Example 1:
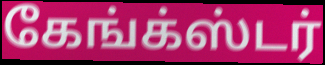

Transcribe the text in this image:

கேங்க்ஸ்டர்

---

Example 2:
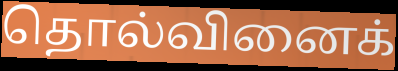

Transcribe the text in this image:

தொல்வினைக்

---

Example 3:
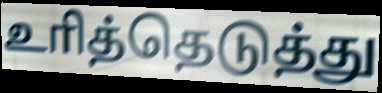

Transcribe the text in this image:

உரித்தெடுத்து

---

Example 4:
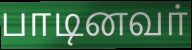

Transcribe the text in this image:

பாடினவர்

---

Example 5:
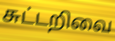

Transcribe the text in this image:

சுட்டறிவை